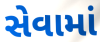
સેવામાં